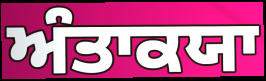
ਅੰਤਾਕਯਾ